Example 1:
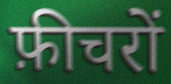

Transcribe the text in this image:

फ़ीचरों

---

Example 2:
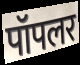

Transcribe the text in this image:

पॉपलर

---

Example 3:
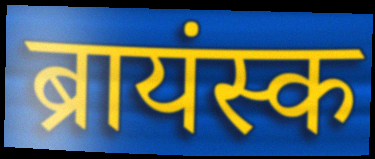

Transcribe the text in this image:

ब्रायंस्क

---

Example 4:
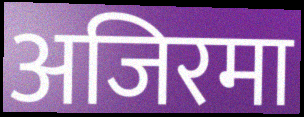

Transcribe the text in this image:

अजिरमा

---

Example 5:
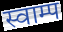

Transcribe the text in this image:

स्वाम्प